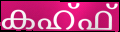
കഹ്ഫ്